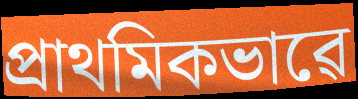
প্ৰাথমিকভাৱে